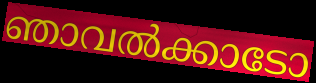
ഞാവൽക്കാടോ